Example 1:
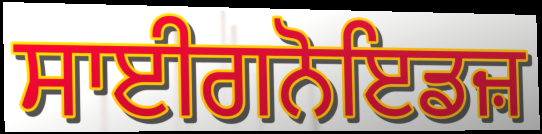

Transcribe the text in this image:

ਸਾਈਗਨੋਇਡਜ਼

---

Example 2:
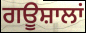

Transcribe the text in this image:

ਗਊਸ਼ਾਲਾਂ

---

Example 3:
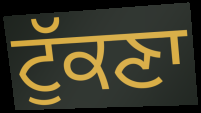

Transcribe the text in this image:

ਟੁੱਕਣਾ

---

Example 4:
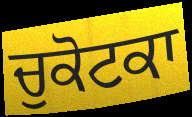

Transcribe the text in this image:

ਚੁਕੋਟਕਾ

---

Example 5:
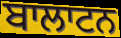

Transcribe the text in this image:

ਬਾਲਾਟਨ